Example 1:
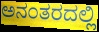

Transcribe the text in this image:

ಅನಂತರದಲ್ಲಿ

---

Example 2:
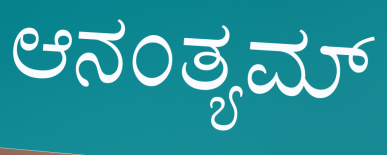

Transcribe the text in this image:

ಆನಂತ್ಯಮ್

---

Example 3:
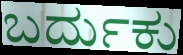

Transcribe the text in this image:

ಬರ್ದುಕು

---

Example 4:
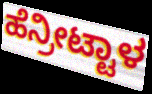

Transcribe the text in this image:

ಹೆನ್ರೀಟ್ಟಾಳ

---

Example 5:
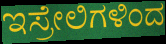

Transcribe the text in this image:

ಇಸ್ರೇಲಿಗಳಿಂದ